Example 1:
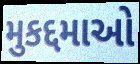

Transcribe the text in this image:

મુકદ્દમાઓ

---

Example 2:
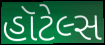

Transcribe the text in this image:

હૉટેલ્સ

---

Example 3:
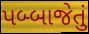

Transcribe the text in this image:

પબ્બાજેતું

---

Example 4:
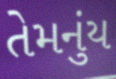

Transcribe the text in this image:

તેમનુંય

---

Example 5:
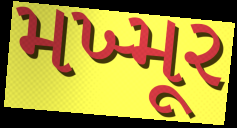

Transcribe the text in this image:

મખ્મૂર